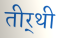
तीर्थी